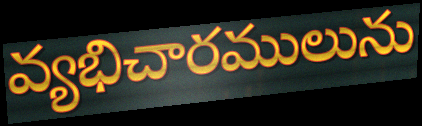
వ్యభిచారములును